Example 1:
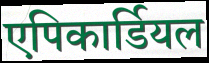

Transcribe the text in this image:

एपिकार्डियल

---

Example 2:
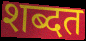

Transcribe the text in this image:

शब्दत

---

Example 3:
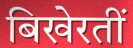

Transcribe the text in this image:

बिखेरतीं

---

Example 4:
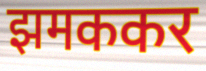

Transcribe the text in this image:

झमककर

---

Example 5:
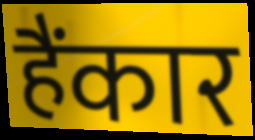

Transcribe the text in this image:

हैंकार